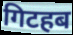
गिटहब